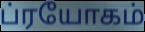
ப்ரயோகம்